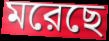
মরেছে